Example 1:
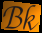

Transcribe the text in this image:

Bk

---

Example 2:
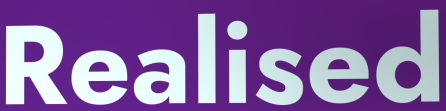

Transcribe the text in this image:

Realised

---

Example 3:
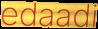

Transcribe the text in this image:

edaadi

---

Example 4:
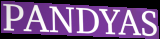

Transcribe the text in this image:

PANDYAS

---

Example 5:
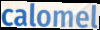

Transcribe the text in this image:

calomel